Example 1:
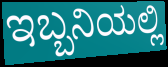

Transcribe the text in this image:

ಇಬ್ಬನಿಯಲ್ಲಿ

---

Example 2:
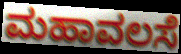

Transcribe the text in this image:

ಮಹಾವಲಸೆ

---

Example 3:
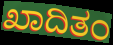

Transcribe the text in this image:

ಖಾದಿತಂ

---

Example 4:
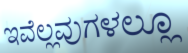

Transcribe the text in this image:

ಇವೆಲ್ಲವುಗಳಲ್ಲೂ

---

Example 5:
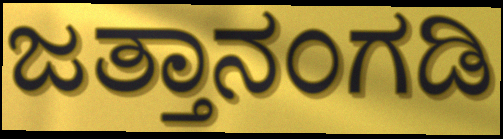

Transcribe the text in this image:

ಜತ್ತಾನಂಗಡಿ